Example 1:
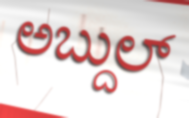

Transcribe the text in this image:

ಅಬ್ದುಲ್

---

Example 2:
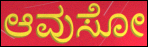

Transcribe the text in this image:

ಆವುಸೋ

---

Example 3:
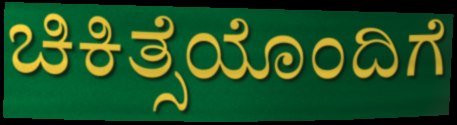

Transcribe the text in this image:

ಚಿಕಿತ್ಸೆಯೊಂದಿಗೆ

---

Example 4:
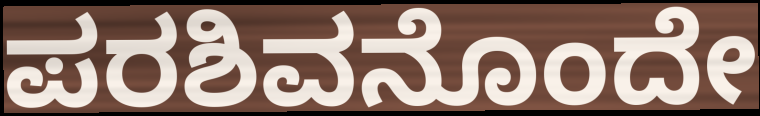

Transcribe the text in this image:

ಪರಶಿವನೊಂದೇ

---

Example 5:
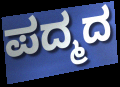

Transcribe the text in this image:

ಪದ್ಮದ